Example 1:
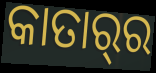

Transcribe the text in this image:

କାତାର୍‌ର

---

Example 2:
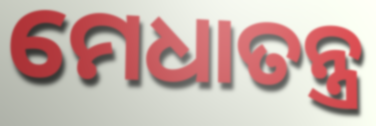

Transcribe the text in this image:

ମେଧାତନ୍ତ୍ର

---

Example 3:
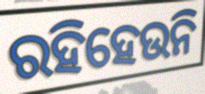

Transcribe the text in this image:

ରହିହେଉନି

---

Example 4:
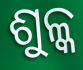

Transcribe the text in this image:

ଶୁଳ୍କ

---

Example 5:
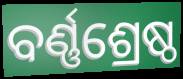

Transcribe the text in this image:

ବର୍ଣ୍ଣଶ୍ରେଷ୍ଠ